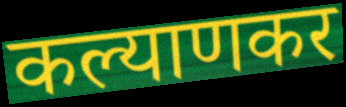
कल्याणकर